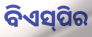
ବିଏସ୍‌ପିର